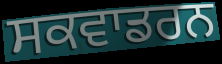
ਸਕਵਾਡਰਨ